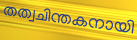
തത്വചിന്തകനായി